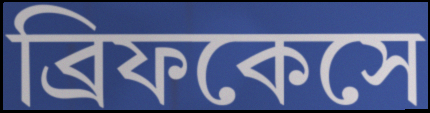
ব্রিফকেসে